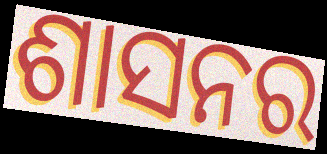
ଶାସନର